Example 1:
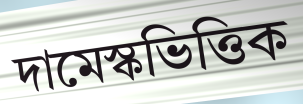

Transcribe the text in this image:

দামেস্কভিত্তিক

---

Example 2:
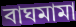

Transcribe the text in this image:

বাঘমামা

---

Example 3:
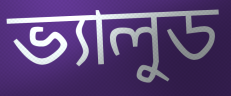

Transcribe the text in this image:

ভ্যালুড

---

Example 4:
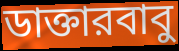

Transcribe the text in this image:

ডাক্তারবাবু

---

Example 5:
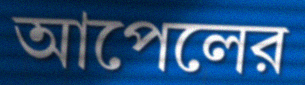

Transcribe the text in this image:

আপেলের